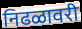
निढळावरी